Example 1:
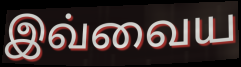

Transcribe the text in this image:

இவ்வைய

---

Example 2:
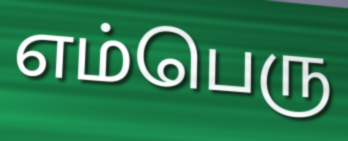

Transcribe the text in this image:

எம்பெரு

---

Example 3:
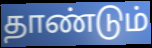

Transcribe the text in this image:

தாண்டும்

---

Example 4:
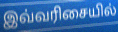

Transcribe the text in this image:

இவ்வரிசையில்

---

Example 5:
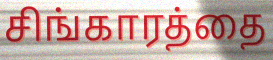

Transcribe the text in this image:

சிங்காரத்தை